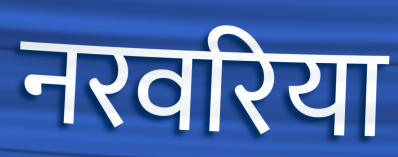
नरवरिया